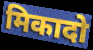
मिकादो